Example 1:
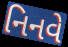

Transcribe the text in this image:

નિનવે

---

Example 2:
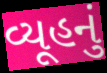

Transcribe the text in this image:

વ્યૂહનું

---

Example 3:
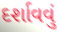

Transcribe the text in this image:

દર્શાવવું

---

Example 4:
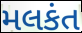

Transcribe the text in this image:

મલકંત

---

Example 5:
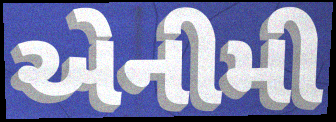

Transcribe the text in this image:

એનીમી